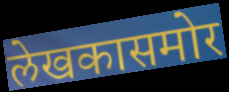
लेखकासमोर